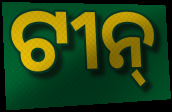
ଟୀନ୍